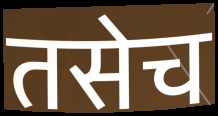
तसेच